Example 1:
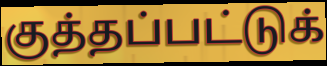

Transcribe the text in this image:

குத்தப்பட்டுக்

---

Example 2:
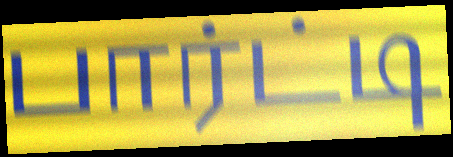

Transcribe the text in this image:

பார்ட்டி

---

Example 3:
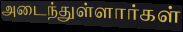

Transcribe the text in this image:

அடைந்துள்ளார்கள்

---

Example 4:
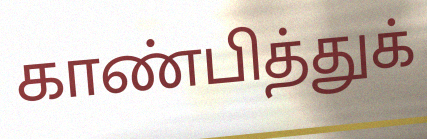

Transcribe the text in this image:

காண்பித்துக்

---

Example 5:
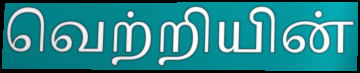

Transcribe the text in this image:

வெற்றியின்